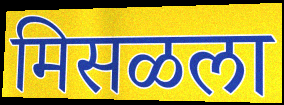
मिसळला